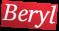
Beryl